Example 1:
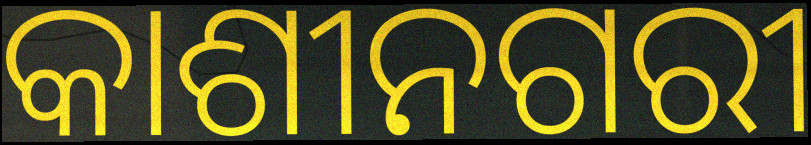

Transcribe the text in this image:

କାଶୀନଗରୀ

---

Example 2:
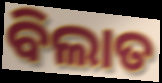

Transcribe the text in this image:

ବିଲାତ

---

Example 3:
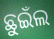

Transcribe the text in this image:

ଛୁଇଁଲ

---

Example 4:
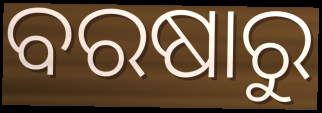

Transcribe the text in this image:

ବରଷାରୁ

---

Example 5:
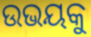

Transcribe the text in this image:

ଉଭୟକୁ